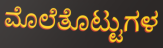
ಮೊಲೆತೊಟ್ಟುಗಳ